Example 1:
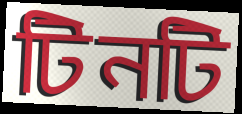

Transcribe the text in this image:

টিনটি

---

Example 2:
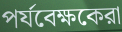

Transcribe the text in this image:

পর্যবেক্ষকেরা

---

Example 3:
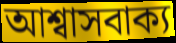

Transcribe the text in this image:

আশ্বাসবাক্য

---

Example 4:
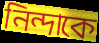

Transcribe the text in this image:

নিন্দাকে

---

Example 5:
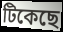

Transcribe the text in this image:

টিকেছে